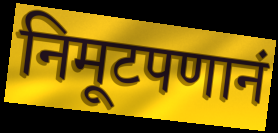
निमूटपणानं